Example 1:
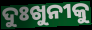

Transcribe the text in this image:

ଦୁଃଖୁନୀକୁ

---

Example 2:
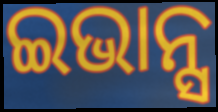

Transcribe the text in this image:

ଇଭାନ୍ସ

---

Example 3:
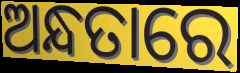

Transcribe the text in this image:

ଅନ୍ଧତାରେ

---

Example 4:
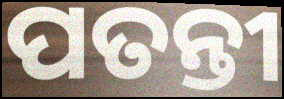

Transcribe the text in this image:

ପତନ୍ତୀ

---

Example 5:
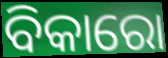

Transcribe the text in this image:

ବିକାରୋ